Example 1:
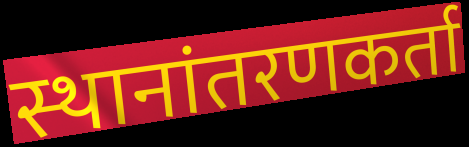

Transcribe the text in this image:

स्थानांतरणकर्ता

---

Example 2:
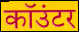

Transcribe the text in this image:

कॉउंटर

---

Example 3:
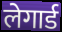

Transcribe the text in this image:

लेगार्ड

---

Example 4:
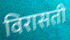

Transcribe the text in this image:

विरासती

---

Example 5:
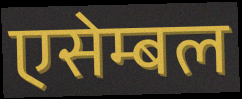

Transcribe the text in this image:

एसेम्बल